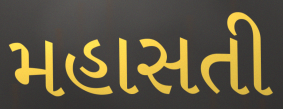
મહાસતી